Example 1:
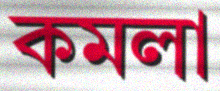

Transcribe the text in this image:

কমলা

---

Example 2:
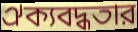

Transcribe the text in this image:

ঐক্যবদ্ধতার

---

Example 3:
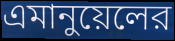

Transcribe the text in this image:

এমানুয়েলের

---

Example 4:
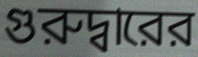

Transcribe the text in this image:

গুরুদ্বারের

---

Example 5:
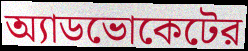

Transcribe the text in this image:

অ্যাডভোকেটের